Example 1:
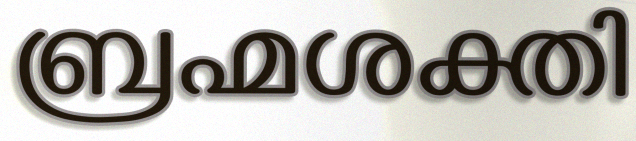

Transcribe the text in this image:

ബ്രഹ്മശക്തി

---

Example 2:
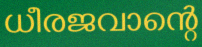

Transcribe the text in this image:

ധീരജവാന്റെ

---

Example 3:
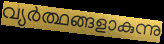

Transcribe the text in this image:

വ്യർത്ഥങ്ങളാകുന്നു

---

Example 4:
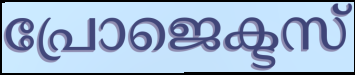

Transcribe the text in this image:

പ്രോജെക്ടസ്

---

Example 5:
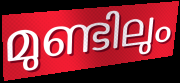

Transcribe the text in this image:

മുണ്ടിലും